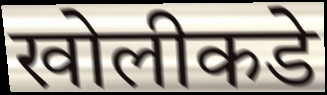
खोलीकडे